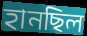
হানছিল